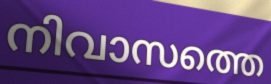
നിവാസത്തെ